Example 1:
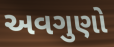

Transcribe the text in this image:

અવગુણો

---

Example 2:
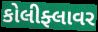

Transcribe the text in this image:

કોલીફ્લાવર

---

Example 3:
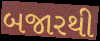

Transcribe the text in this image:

બજારથી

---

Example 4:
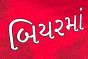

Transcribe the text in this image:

બિયરમાં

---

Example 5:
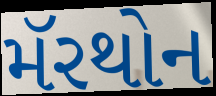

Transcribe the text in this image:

મૅરથોન